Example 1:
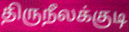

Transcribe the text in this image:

திருநீலக்குடி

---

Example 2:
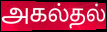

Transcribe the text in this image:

அகல்தல்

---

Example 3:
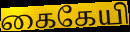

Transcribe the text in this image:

கைகேயி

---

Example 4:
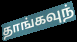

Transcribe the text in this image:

தாங்கவுந்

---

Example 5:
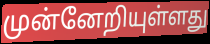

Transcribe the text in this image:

முன்னேறியுள்ளது